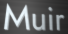
Muir